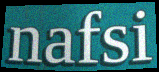
nafsi